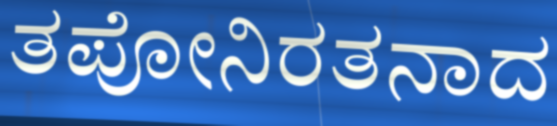
ತಪೋನಿರತನಾದ